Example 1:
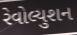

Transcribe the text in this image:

રેવોલ્યુશન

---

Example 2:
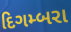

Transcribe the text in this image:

દિગમ્બરા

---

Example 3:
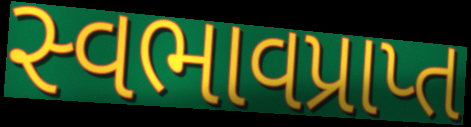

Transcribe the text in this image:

સ્વભાવપ્રાપ્ત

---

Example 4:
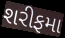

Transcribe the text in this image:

શરીફમા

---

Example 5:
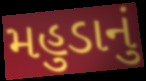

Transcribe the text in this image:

મહુડાનું